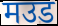
मउड